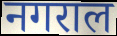
नगराल